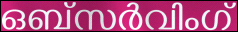
ഒബ്സർവിംഗ്